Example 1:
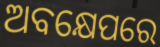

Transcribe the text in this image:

ଅବକ୍ଷେପରେ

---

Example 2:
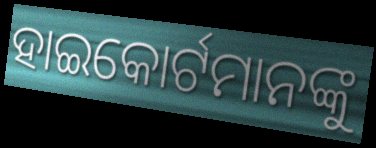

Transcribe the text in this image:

ହାଇକୋର୍ଟମାନଙ୍କୁ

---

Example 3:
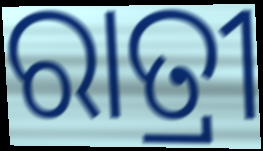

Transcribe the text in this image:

ରାତ୍ରୀ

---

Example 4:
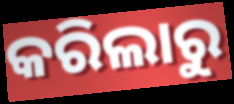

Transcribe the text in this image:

କରିଲାରୁ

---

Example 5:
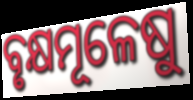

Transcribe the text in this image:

ବୃକ୍ଷମୂଳେଷୁ